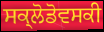
ਸਕ੍ਲੋਡੋਵਸਕੀ